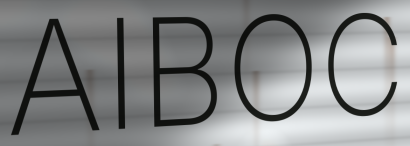
AIBOC